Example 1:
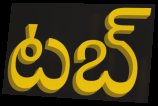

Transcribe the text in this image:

టబ్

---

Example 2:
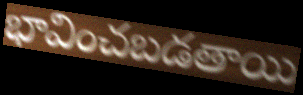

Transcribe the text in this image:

భావించబడతాయి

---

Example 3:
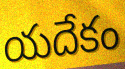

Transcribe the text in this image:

యదేకం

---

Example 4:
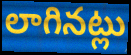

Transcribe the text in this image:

లాగినట్లు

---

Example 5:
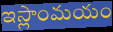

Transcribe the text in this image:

ఇస్లాంమయం